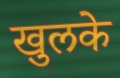
खुलके